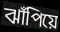
ঝাঁপিয়ে